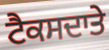
ਟੈਕਸਦਾਤੇ